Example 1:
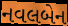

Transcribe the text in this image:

નવલબેન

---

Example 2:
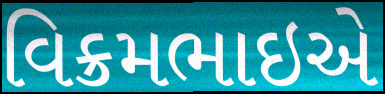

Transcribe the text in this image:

વિક્રમભાઇએ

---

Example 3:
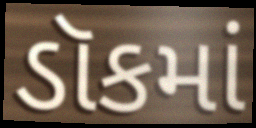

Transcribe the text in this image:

ડૉકમાં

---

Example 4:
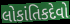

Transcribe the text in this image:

લોકાંતિકદેવો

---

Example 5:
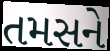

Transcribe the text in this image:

તમસને